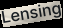
Lensing